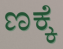
ಣಕ್ಕೆ